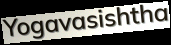
Yogavasishtha